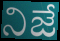
నిజే